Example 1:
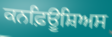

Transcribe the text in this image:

ਕਨਫ਼ਿਊਸ਼ਿਅਸ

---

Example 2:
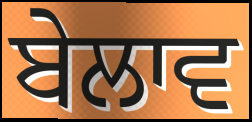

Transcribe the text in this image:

ਬੇਲਾਵ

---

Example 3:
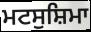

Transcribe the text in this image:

ਮਟਸੁਸ਼ਿਮਾ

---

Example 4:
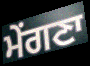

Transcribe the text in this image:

ਮੇਂਗਣਾ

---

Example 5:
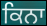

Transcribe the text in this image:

ਕਿਨਾ